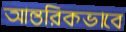
আন্তরিকভাবে